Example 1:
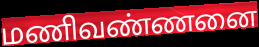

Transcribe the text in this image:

மணிவண்ணனை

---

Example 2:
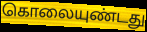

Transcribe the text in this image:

கொலையுண்டது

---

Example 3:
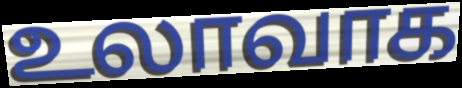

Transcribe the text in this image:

உலாவாக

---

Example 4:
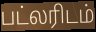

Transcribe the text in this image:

பட்லரிடம்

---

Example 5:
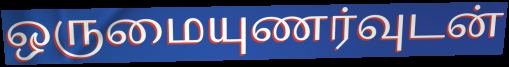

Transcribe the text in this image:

ஒருமையுணர்வுடன்